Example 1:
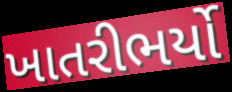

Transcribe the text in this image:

ખાતરીભર્યો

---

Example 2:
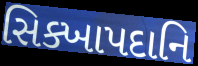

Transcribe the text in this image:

સિક્ખાપદાનિ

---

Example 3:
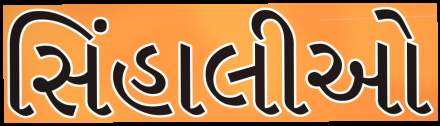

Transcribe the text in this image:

સિંહાલીઓ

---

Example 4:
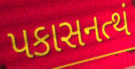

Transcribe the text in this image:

પકાસનત્થં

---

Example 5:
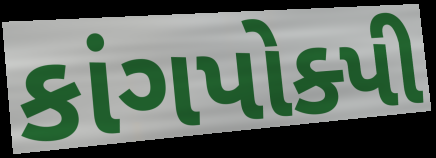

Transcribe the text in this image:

કાંગપોક્પી